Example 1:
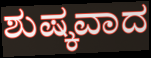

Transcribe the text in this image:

ಶುಷ್ಕವಾದ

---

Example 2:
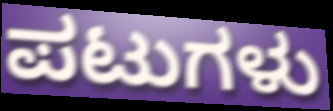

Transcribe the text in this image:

ಪಟುಗಳು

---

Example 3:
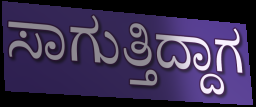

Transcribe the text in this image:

ಸಾಗುತ್ತಿದ್ದಾಗ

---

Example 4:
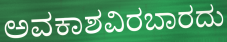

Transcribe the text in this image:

ಅವಕಾಶವಿರಬಾರದು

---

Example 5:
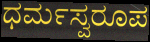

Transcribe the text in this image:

ಧರ್ಮಸ್ವರೂಪ